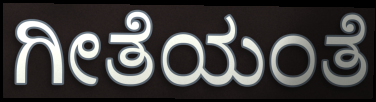
ಗೀತೆಯಂತೆ